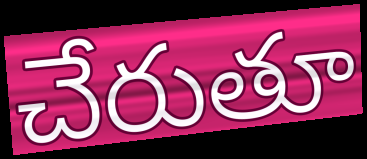
చేరుతూ